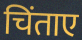
चिंताए